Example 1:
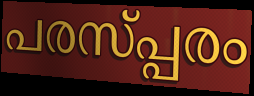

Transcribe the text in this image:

പരസ്പ്പരം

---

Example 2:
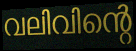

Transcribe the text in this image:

വലിവിന്റെ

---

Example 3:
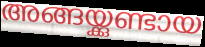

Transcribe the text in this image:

അങ്ങയ്ക്കുണ്ടായ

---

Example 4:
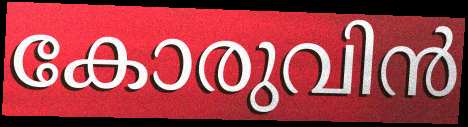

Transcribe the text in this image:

കോരുവിൻ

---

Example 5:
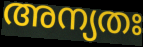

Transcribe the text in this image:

അന്യതഃ